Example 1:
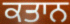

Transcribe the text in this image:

ਕਤਾਨ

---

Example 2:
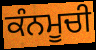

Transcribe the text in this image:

ਕੰਨਮੂਚੀ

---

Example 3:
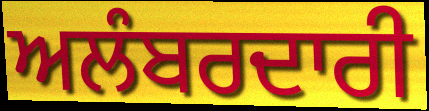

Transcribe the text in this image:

ਅਲੰਬਰਦਾਰੀ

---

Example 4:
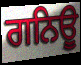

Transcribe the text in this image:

ਗਨਿਊ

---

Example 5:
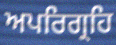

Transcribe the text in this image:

ਅਪਰਿਗ੍ਰਹਿ